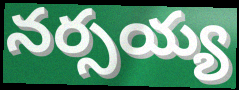
నర్సయ్య